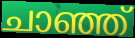
ചാഞ്ഞ്